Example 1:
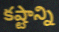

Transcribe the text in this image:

కష్టాన్ని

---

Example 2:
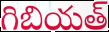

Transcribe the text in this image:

గిబియత్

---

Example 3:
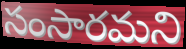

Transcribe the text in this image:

సంసారమని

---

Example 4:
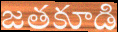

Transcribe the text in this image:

జతకూడి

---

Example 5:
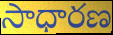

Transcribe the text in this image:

సాధారణ